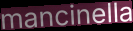
mancinella